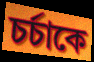
চর্চাকে